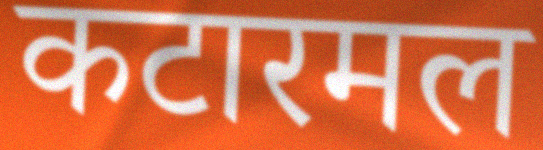
कटारमल